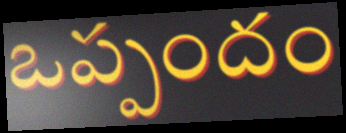
ఒప్పందం